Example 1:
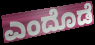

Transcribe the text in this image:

ಎಂದೊಡೆ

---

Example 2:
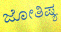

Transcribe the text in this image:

ಜೋತಿಷ್ಯ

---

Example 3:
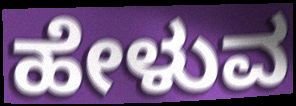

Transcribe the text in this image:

ಹೇಳುವ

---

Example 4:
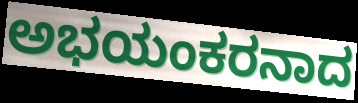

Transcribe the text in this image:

ಅಭಯಂಕರನಾದ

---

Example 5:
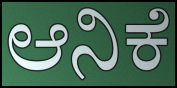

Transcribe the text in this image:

ಆನಿಕೆ